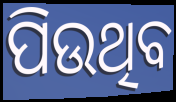
ପିଉଥିବ